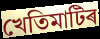
খেতিমাটিৰ